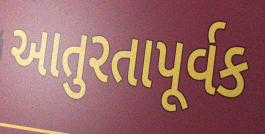
આતુરતાપૂર્વક